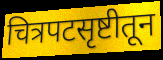
चित्रपटसृष्टीतून